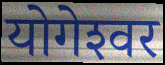
योगेश्‍वर